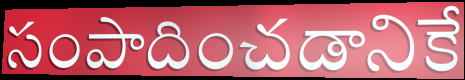
సంపాదించడానికే